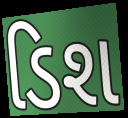
ડિશ